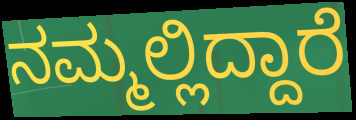
ನಮ್ಮಲ್ಲಿದ್ದಾರೆ